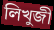
লিখুজী